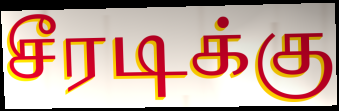
சீரடிக்கு